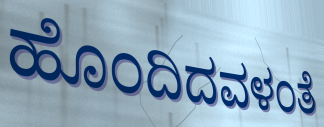
ಹೊಂದಿದವಳಂತೆ